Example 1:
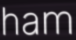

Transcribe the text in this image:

ham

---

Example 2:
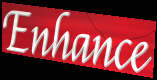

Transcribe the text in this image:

Enhance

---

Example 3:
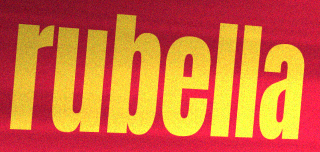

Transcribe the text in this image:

rubella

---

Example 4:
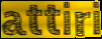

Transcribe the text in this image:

attiri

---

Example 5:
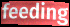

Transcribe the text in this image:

feeding